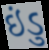
ઇંડુ